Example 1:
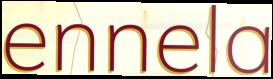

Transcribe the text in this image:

ennela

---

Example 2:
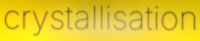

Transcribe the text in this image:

crystallisation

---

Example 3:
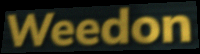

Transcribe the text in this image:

Weedon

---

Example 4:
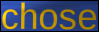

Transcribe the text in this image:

chose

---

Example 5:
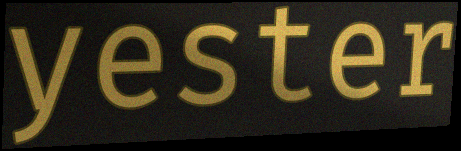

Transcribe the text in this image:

yester